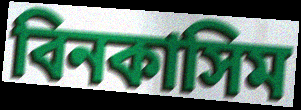
বিনকাসিম